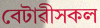
বেটাৱীসকল